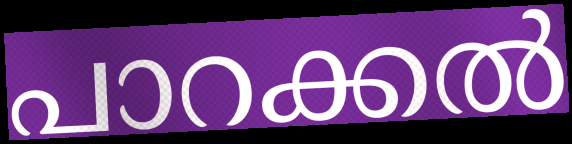
പാറക്കൽ